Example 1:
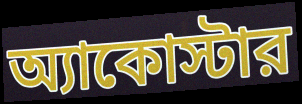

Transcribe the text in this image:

অ্যাকোস্টার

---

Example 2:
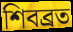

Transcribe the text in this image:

শিবব্রত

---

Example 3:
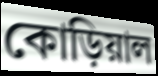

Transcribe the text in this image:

কোড়িয়াল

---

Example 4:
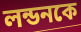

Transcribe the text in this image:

লন্ডনকে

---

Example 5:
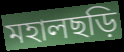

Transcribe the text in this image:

মহালছড়ি